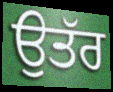
ਉਤੱਰ